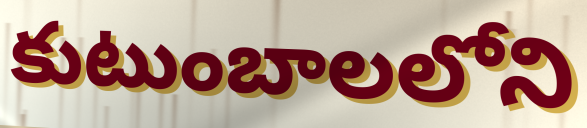
కుటుంబాలలోని